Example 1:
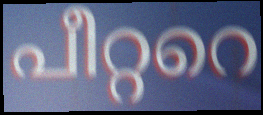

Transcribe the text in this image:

പീറ്ററെ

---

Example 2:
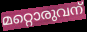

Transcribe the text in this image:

മറ്റൊരുവന്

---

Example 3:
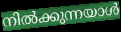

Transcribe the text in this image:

നിൽക്കുന്നയാൾ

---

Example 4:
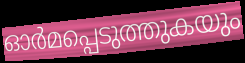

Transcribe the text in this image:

ഓർമപ്പെടുത്തുകയും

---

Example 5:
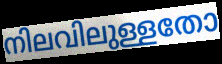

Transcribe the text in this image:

നിലവിലുള്ളതോ